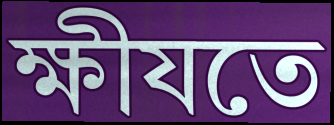
ক্ষীযতে